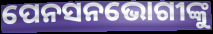
ପେନସନଭୋଗୀଙ୍କୁ